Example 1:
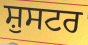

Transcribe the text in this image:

ਸ਼ੁਸਟਰ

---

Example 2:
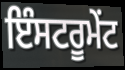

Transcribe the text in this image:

ਇੰਸਟਰੂਮੇਂਟ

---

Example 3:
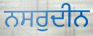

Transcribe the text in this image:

ਨਸਰੁਦੀਨ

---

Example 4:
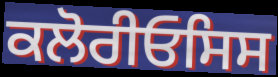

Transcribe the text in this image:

ਕਲੋਰੀਓਸਿਸ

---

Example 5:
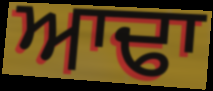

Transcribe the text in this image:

ਆਢਾ